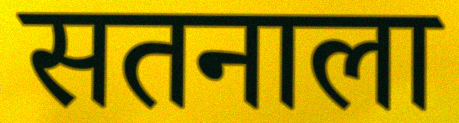
सतनाला